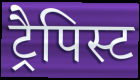
ट्रैपिस्ट